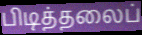
பிடித்தலைப்